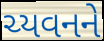
ચ્યવનને